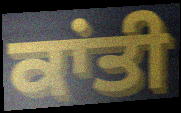
ਕਾਂਤੀ